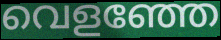
വെളഞ്ഞേ